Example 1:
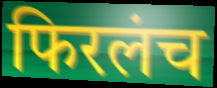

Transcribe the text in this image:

फिरलंच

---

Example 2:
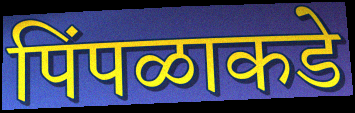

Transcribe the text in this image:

पिंपळाकडे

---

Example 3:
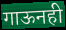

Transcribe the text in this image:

गाऊनही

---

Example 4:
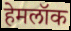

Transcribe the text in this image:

हेमलॉक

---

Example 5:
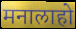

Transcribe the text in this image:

मनालाहो